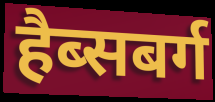
हैब्सबर्ग